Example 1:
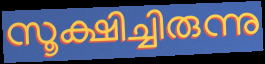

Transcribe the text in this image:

സൂക്ഷിച്ചിരുന്നു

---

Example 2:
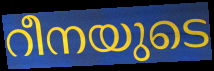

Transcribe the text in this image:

റീനയുടെ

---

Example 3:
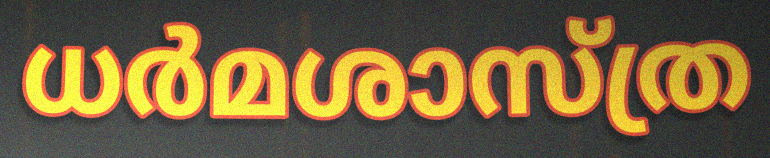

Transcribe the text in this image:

ധർമശാസ്ത്ര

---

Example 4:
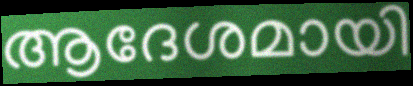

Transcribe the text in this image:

ആദേശമായി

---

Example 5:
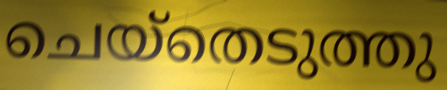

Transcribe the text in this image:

ചെയ്തെടുത്തു